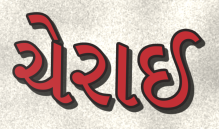
ચેરાઈ